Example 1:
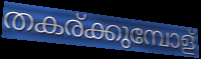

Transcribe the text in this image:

തകര്ക്കുമ്പോള്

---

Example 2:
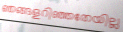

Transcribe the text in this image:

ഞങ്ങളറിഞ്ഞതേയില്ല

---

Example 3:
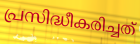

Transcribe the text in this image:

പ്രസിദ്ധീകരിച്ചത്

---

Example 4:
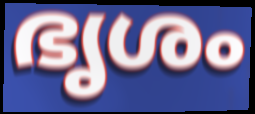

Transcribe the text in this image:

ഭൃശം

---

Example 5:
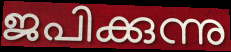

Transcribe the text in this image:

ജപിക്കുന്നു